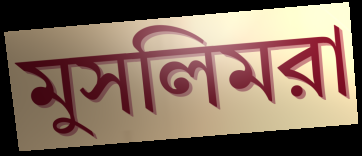
মুসলিমরা